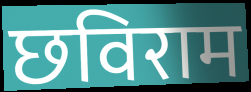
छविराम